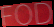
FOD